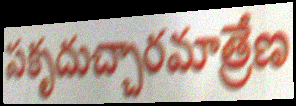
సకృదుచ్చారమాత్రేణ